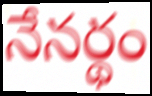
నేనర్థం